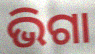
ଭିଗା